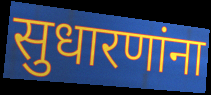
सुधारणांना